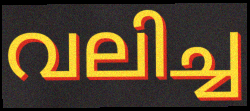
വലിച്ച